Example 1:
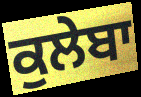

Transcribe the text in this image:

ਕੁਲੇਬਾ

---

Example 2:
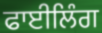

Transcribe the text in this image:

ਫਾਈਲਿੰਗ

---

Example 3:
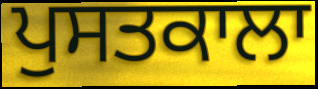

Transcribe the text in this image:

ਪੁਸਤਕਾਲਾ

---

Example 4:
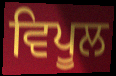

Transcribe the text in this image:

ਵਿਪੂਲ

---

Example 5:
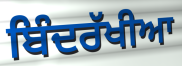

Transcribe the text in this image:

ਬਿੰਦਰੱਖੀਆ